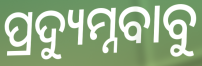
ପ୍ରଦ୍ୟୁମ୍ନବାବୁ